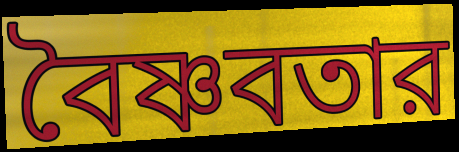
বৈষ্ণবতার